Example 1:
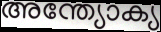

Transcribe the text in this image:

അന്ത്യോക്യ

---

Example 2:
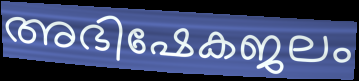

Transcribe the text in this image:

അഭിഷേകജലം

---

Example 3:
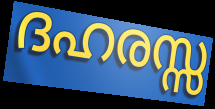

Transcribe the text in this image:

ദഹരസ്സ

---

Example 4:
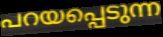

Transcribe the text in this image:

പറയപ്പെടുന്ന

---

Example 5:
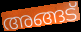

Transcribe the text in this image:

അങ്ങട്